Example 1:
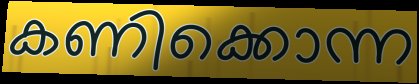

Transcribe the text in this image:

കണിക്കൊന്ന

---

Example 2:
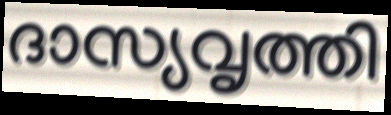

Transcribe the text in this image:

ദാസ്യവൃത്തി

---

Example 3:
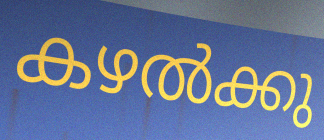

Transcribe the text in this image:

കഴൽക്കു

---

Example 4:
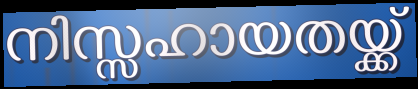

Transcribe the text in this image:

നിസ്സഹായതയ്ക്ക്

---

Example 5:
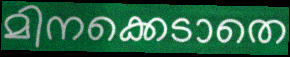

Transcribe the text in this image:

മിനക്കെടാതെ